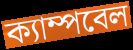
ক্যাম্পবেল